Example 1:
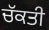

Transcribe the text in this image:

ਚੱਕਤੀ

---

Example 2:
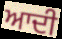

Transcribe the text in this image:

ਆਦੀ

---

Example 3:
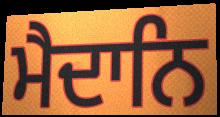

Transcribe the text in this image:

ਮੈਦਾਨਿ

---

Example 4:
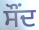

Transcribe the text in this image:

ਸੌਂਦ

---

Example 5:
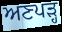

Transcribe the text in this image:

ਅਣਪੜ੍ਹ